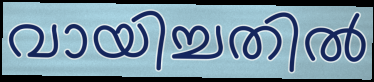
വായിച്ചതിൽ